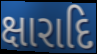
ક્ષારાદિ